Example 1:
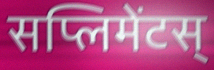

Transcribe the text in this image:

सप्लिमेंटस्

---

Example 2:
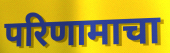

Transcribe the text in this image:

परिणामाचा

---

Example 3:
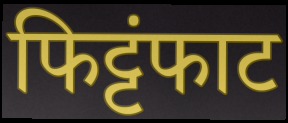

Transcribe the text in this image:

फिट्टंफाट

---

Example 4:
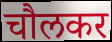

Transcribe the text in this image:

चौलकर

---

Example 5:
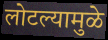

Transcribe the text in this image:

लोटल्यामुळे